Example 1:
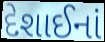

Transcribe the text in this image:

દેશાઈનાં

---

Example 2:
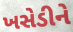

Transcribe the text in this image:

ખસેડીને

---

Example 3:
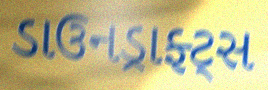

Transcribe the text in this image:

ડાઉનડ્રાફ્ટ્સ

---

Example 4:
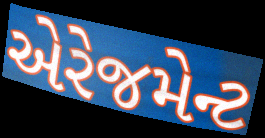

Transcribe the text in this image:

એરેજમેન્ટ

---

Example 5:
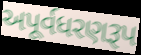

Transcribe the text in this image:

અપૂર્વધરણરૂપ